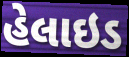
હેલાઇડ